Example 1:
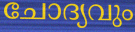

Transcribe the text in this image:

ചോദ്യവും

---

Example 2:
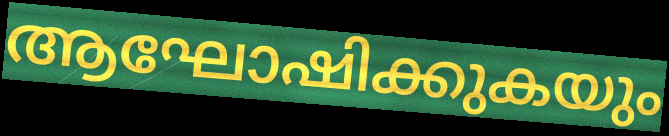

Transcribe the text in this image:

ആഘോഷിക്കുകയും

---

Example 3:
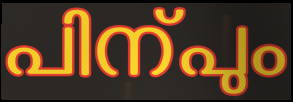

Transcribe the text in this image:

പിന്പും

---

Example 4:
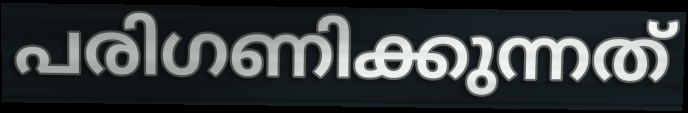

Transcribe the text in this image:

പരിഗണിക്കുന്നത്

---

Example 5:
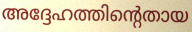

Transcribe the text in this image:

അദ്ദേഹത്തിന്റെതായ